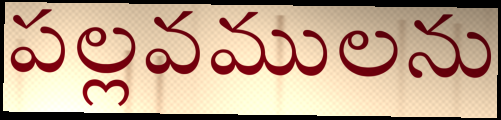
పల్లవములను